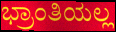
ಭ್ರಾಂತಿಯಲ್ಲ